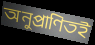
অনুপ্রাণিতই